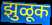
झुळूक